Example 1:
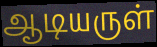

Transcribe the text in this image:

ஆடியருள்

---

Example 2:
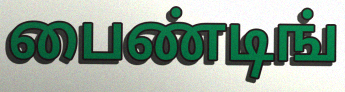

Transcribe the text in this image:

பைண்டிங்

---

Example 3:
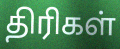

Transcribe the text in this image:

திரிகள்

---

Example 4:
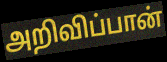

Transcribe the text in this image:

அறிவிப்பான்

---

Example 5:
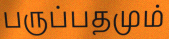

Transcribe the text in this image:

பருப்பதமும்